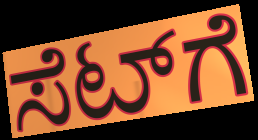
ಸೆಟ್‌ಗೆ